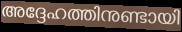
അദ്ദേഹത്തിനുണ്ടായി